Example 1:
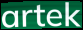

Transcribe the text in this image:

artek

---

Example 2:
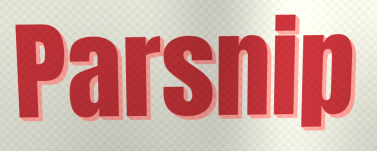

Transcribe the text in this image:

Parsnip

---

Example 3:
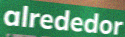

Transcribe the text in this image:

alrededor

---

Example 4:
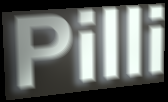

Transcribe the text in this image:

Pilli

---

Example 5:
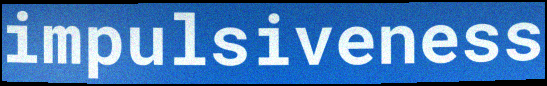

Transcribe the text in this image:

impulsiveness